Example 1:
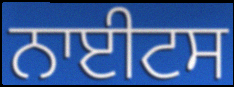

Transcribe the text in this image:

ਨਾਈਟਸ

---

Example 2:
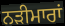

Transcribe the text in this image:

ਨੜੀਮਾਰਾਂ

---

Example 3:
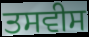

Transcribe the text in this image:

ਤਸਵੀਸ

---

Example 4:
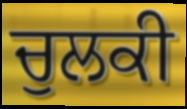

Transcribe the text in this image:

ਚੁਲਕੀ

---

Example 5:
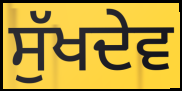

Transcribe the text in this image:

ਸੁੱਖਦੇਵ